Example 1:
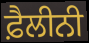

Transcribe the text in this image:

ਫ਼ੈਲੀਨੀ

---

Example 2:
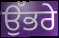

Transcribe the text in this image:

ਉੱਭਰੇ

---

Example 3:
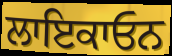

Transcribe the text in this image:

ਲਾਇਕਾਓਨ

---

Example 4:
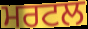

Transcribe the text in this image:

ਮਰਟਲ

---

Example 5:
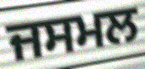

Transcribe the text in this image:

ਜਸਮਲ